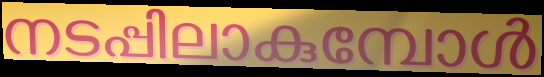
നടപ്പിലാകുമ്പോൾ